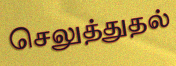
செலுத்துதல்